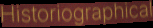
Historiographical